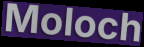
Moloch